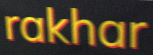
rakhar